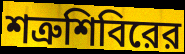
শত্রুশিবিরের